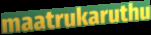
maatrukaruthu